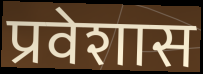
प्रवेशास